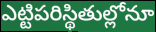
ఎట్టిపరిస్థితుల్లోనూ